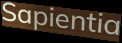
Sapientia